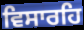
ਵਿਸਾਰਹਿ